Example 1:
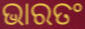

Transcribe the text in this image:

ଭାରତଂ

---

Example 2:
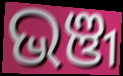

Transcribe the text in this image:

ଭଞ୍ଜ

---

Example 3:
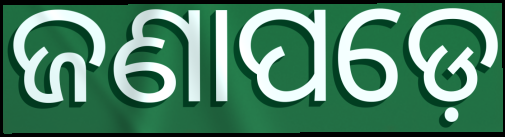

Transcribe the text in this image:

ଜଣାପଡ଼େ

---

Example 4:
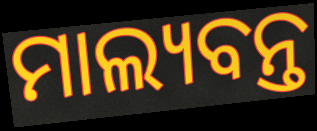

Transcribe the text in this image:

ମାଲ୍ୟବନ୍ତ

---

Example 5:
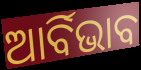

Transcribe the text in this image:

ଆର୍ବିଭାବ